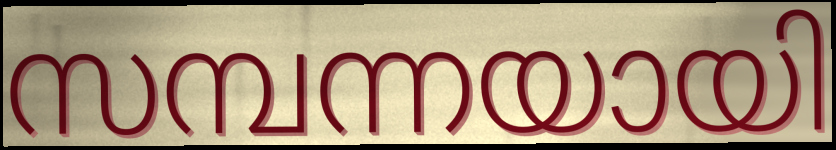
സമ്പന്നയായി